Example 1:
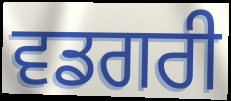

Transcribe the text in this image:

ਵਡਗਰੀ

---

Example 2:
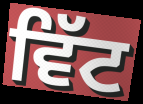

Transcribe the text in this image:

ਵਿੱਟ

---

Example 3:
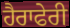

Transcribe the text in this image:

ਹੈਰਾਫੇਰੀ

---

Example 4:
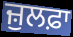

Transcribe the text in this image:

ਜ਼ੁਲਫ਼ਾ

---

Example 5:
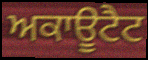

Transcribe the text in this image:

ਅਕਾਊਟੈਟ